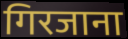
गिरजाना